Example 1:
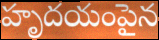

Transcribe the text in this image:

హృదయంపైన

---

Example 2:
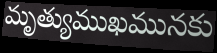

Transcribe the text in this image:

మృత్యుముఖమునకు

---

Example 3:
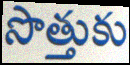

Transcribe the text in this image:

సొత్తుకు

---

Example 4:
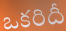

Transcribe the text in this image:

ఒకరిదీ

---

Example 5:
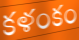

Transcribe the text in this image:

కళంకం